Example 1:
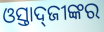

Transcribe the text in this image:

ଓସ୍ତାଦ୍‌ଜୀଙ୍କର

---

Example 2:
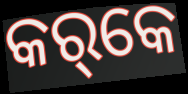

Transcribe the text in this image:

କର୍‌କେ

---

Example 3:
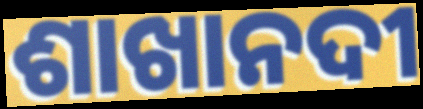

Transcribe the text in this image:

ଶାଖାନଦୀ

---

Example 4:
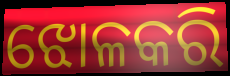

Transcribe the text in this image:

ଝୋଳକରି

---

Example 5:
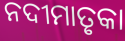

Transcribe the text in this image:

ନଦୀମାତୃକା